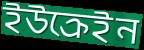
ইউক্রেইন